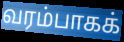
வரம்பாகக்